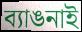
ব্যাঙনাই